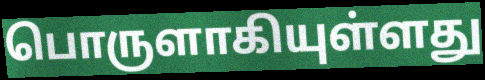
பொருளாகியுள்ளது